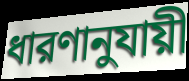
ধারণানুযায়ী